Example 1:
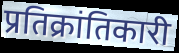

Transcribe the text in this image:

प्रतिक्रांतिकारी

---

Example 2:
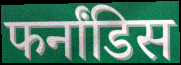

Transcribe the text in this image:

फर्नांडिस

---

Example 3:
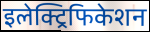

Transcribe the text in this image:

इलेक्ट्रिफिकेशन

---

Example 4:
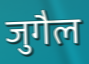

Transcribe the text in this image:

जुगैल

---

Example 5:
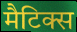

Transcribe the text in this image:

मैटिक्स